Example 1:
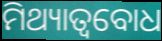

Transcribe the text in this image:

ମିଥ୍ୟାତ୍ୱବୋଧ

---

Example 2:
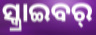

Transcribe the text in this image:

ସ୍କ୍ରାଇବର୍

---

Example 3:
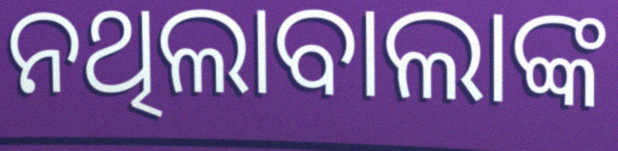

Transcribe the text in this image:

ନଥିଲାବାଲାଙ୍କ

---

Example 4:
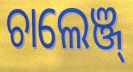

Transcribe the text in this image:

ଚାଲେଞ୍ଜ୍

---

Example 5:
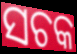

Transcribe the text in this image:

ସଚକ